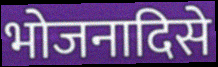
भोजनादिसे